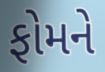
ફોમને